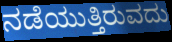
ನಡೆಯುತ್ತಿರುವದು